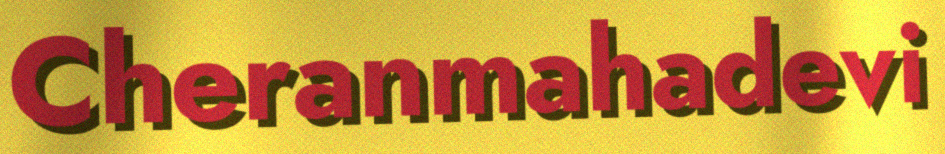
Cheranmahadevi